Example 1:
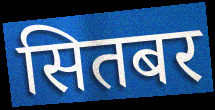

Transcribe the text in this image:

सितबर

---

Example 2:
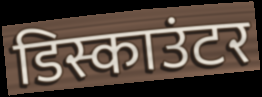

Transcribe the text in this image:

डिस्काउंटर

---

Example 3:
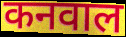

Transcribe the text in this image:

कनवाल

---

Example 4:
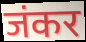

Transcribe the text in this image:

जंकर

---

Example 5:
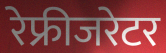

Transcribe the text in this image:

रेफ्रीजरेटर